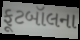
ફૂટબૉલના